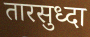
तारसुध्दा